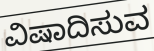
ವಿಷಾದಿಸುವ